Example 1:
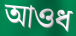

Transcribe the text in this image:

আওধ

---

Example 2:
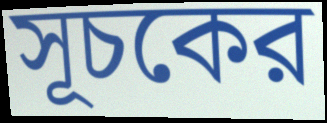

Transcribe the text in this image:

সূচকের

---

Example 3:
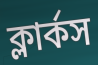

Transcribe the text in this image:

ক্লার্কস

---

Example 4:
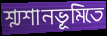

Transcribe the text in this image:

শ্মশানভূমিতে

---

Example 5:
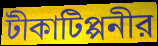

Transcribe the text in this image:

টীকাটিপ্পনীর